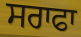
ਸਰਾਫਾ